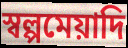
স্বল্পমেয়াদি